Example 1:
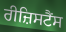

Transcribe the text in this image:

ਰੀਜ਼ਿਸਟੈਂਸ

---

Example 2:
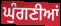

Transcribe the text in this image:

ਘੁੰਗਣੀਆਂ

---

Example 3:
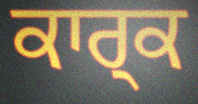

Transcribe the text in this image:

ਕਾਰ੍ਕ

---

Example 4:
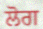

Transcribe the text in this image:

ਲੋਗ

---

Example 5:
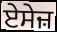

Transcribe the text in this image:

ਏਸੇਜ਼